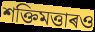
শক্তিমত্তাৰও